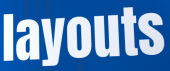
layouts